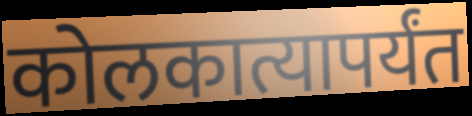
कोलकात्यापर्यंत